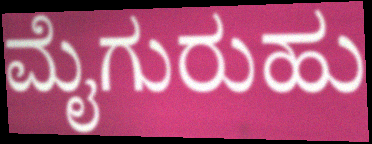
ಮೈಗುರುಹು